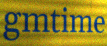
gmtime